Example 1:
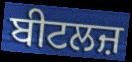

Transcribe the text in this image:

ਬੀਟਲਜ਼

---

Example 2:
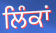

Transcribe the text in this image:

ਲਿੰਕਾਂ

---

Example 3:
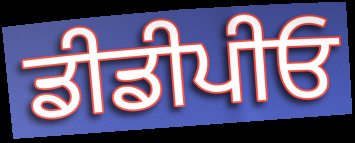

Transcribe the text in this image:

ਡੀਡੀਪੀਓ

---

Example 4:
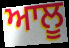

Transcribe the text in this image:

ਆਲੂ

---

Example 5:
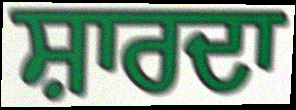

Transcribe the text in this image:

ਸ਼ਾਰਦਾ